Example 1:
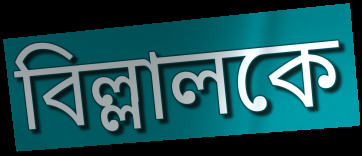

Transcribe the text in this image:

বিল্লালকে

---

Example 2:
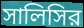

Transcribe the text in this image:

সালিসির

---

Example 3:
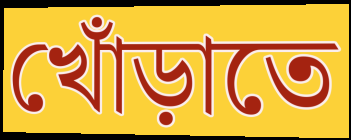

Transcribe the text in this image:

খোঁড়াতে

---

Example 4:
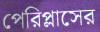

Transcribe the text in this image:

পেরিপ্লাসের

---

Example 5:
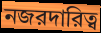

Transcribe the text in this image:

নজরদারিত্ব